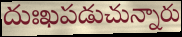
దుఃఖపడుచున్నారు